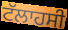
ਟੱਲਾਹਸੀ